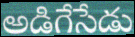
అడిగేసేడు